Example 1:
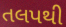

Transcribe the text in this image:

તલપથી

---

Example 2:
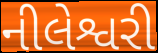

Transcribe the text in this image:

નીલેશ્વરી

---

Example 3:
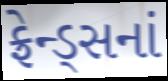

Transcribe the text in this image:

ફ્રેન્ડ્સનાં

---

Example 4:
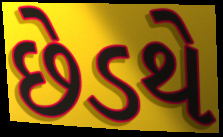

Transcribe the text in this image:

છેડથે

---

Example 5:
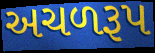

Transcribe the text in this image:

અચળરૂપ